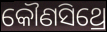
କୌଣସିଥ୍ରେ